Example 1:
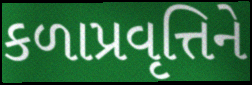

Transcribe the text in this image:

કળાપ્રવૃત્તિને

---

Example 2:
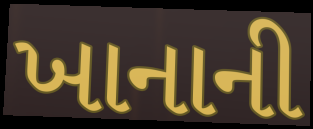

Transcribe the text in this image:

ખાનાની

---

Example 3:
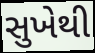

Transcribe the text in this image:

સુખેથી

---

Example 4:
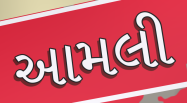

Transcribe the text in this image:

આમલી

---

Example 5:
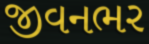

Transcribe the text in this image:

જીવનભર